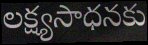
లక్ష్యసాధనకు